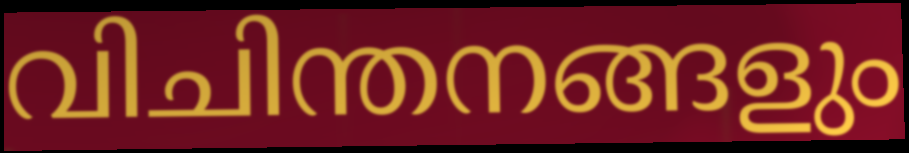
വിചിന്തനങ്ങളും